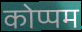
कोप्पम